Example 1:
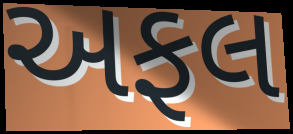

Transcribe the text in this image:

અફલ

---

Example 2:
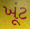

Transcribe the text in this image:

ખૂંટ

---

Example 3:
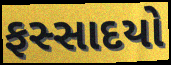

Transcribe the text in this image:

ફસ્સાદયો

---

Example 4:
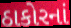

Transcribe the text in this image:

ઠાકોરનાં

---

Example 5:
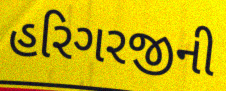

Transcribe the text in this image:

હરિગરજીની